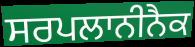
ਸਰਪਲਾਨੀਨੈਕ